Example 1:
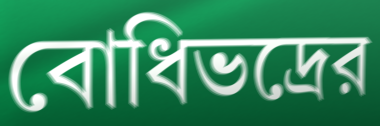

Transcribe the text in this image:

বোধিভদ্রের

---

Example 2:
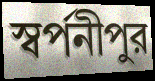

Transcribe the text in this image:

স্বর্পনীপুর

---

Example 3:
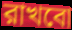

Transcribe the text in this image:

রাখবো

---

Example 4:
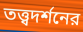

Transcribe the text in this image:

তত্ত্বদর্শনের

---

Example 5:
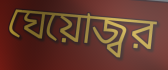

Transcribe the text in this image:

ঘেয়োজ্বর